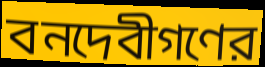
বনদেবীগণের